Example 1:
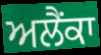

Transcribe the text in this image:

ਅਲੈਂਕਾ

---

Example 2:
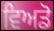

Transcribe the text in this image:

ਵਿਅਡੋ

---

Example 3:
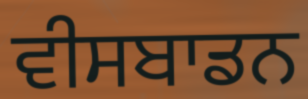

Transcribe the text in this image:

ਵੀਸਬਾਡਨ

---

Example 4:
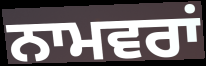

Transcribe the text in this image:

ਨਾਮਵਰਾਂ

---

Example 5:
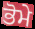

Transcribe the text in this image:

ਭੋਮੇ